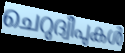
ചെറുദ്വീപുകൾ